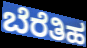
ಬೆರೆತಿಹ